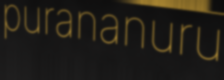
purananuru